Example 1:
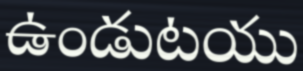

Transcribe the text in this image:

ఉండుటయు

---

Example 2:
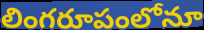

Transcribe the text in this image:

లింగరూపంలోనూ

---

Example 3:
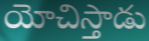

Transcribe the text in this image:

యోచిస్తాడు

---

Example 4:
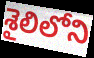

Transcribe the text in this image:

శైలిలోని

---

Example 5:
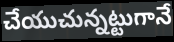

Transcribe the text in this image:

చేయుచున్నట్టుగానే